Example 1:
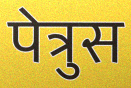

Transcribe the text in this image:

पेत्रुस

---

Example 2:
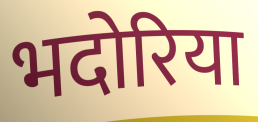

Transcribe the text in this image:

भदोरिया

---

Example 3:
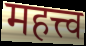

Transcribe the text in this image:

महत्त्व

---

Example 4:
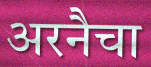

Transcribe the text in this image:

अरनैचा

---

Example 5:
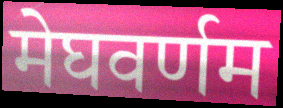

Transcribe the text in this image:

मेघवर्णम